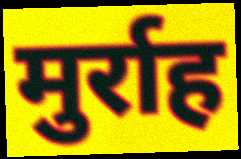
मुर्राह